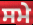
ਸਮੇ